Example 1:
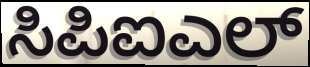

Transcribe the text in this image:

ಸಿಪಿಐಎಲ್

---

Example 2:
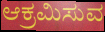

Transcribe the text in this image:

ಆಕ್ರಮಿಸುವ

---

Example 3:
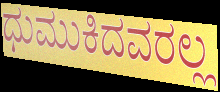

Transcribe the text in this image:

ಧುಮುಕಿದವರಲ್ಲ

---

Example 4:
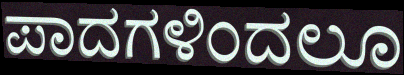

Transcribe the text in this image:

ಪಾದಗಳಿಂದಲೂ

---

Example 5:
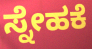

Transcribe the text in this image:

ಸ್ನೇಹಕೆ